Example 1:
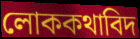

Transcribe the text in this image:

লোককথাবিদ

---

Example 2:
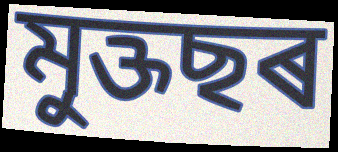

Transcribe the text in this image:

মুক্তছৰ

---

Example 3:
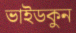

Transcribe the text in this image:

ভাইডকুন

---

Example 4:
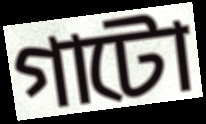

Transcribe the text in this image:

গাটো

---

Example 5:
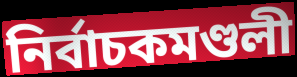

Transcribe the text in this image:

নিৰ্বাচকমণ্ডলী